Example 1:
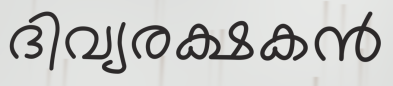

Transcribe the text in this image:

ദിവ്യരക്ഷകൻ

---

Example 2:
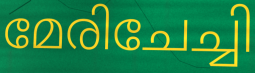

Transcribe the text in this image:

മേരിചേച്ചി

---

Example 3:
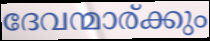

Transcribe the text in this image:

ദേവന്മാര്ക്കും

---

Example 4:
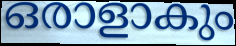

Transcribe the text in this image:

ഒരാളാകും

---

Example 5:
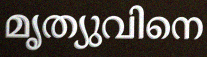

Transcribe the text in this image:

മൃത്യുവിനെ